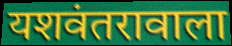
यशवंतरावाला